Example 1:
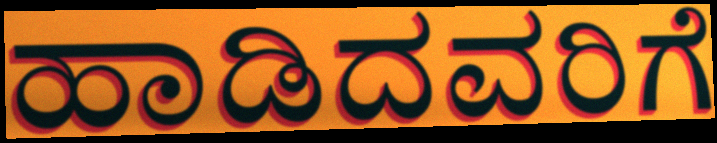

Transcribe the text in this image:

ಹಾಡಿದವರಿಗೆ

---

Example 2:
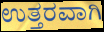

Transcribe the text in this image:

ಉತ್ತರವಾಗಿ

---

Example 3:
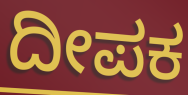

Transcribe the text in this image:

ದೀಪಕ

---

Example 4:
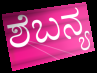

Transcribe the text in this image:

ಶೆಬನ್ಯ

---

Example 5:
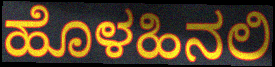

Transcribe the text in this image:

ಹೊಳಹಿನಲಿ